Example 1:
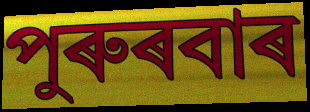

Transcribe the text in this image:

পুৰুৰবাৰ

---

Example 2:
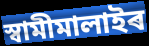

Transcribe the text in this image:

স্বামীমালাইৰ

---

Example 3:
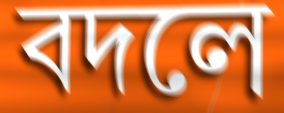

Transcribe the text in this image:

বদলে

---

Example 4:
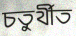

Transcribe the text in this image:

চতুৰ্থীত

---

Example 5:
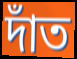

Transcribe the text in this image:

দাঁত